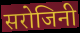
सरोजिनी